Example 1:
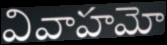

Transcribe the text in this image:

వివాహమో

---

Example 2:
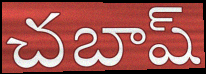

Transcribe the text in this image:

చబాష్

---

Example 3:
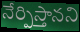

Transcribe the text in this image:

నేర్పిస్తానని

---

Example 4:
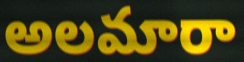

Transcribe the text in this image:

అలమారా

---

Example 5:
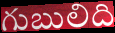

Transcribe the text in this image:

గుబులిది